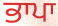
ਭਾਪਾ